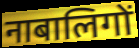
नाबालिगों